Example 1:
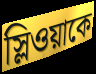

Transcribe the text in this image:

স্লিওয়াকে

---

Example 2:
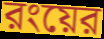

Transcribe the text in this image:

রংয়ের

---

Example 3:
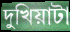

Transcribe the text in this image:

দুখিয়াটা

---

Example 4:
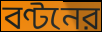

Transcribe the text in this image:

বণ্টনের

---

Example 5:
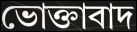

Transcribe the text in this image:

ভোক্তাবাদ